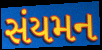
સંયમન